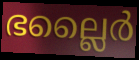
ഭല്ലൈർ